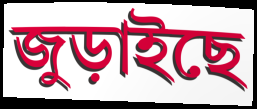
জুড়াইছে